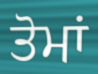
ਤੋਮਾਂ